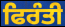
ਫਿਰੰਤੀ